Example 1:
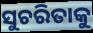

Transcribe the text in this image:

ସୁଚରିତାକୁ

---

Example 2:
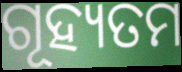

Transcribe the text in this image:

ଗୂହ୍ୟତମ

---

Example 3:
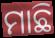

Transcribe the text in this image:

ମାଛି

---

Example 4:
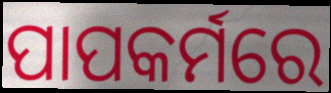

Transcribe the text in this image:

ପାପକର୍ମରେ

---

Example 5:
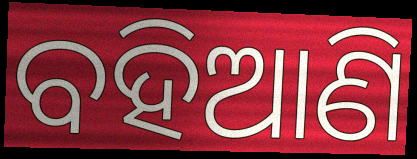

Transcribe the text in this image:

ବହିଆଣି